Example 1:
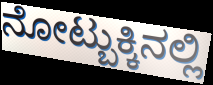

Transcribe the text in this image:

ನೋಟ್ಬುಕ್ಕಿನಲ್ಲಿ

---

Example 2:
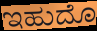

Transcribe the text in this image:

ಇಹುದೊ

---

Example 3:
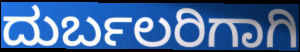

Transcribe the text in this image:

ದುರ್ಬಲರಿಗಾಗಿ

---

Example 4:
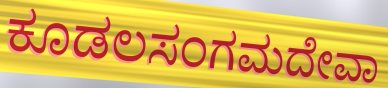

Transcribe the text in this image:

ಕೂಡಲಸಂಗಮದೇವಾ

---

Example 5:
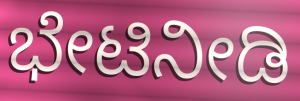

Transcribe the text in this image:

ಭೇಟಿನೀಡಿ